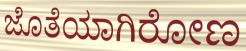
ಜೊತೆಯಾಗಿರೋಣ